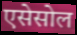
एसेसोल